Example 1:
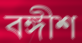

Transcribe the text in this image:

বঙ্গীশ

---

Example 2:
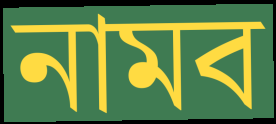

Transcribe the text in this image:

নামব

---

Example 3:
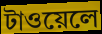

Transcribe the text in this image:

টাওয়েলে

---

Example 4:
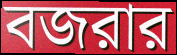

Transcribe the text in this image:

বজরার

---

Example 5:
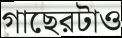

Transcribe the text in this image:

গাছেরটাও